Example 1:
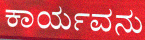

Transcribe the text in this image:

ಕಾರ್ಯವನು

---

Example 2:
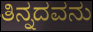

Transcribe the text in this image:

ತಿನ್ನದವನು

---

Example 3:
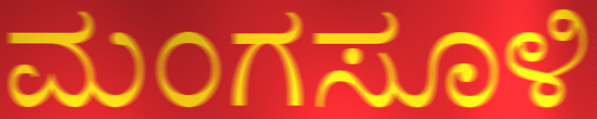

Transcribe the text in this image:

ಮಂಗಸೂಳಿ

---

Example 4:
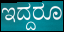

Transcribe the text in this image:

ಇದ್ದರೂ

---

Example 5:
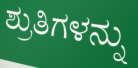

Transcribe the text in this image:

ಶ್ರುತಿಗಳನ್ನು